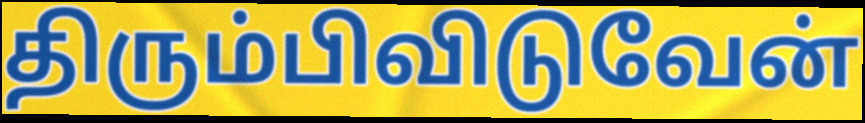
திரும்பிவிடுவேன்